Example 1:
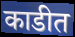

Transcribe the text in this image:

काडीत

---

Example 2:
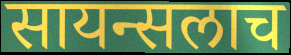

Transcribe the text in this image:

सायन्सलाच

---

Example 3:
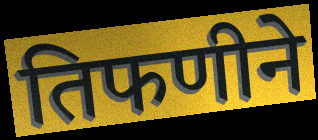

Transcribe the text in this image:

तिफणीने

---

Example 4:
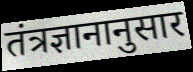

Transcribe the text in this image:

तंत्रज्ञानानुसार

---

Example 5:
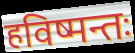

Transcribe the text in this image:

हविष्मन्तः